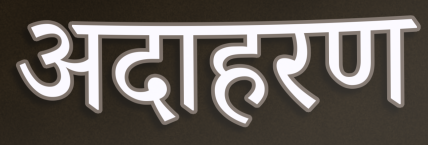
अदाहरण